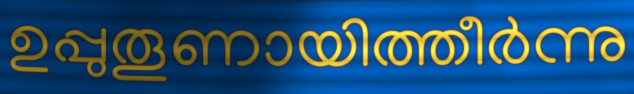
ഉപ്പുതൂണായിത്തീർന്നു